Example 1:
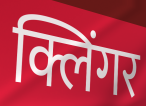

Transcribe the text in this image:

क्लिंगर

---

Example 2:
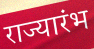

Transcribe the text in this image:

राज्यारंभ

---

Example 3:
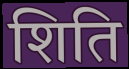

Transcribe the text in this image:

शिति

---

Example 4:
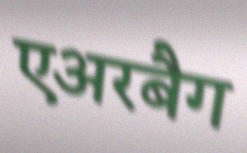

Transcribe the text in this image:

एअरबैग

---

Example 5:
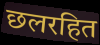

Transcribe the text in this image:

छलरहित